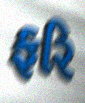
ફરિ